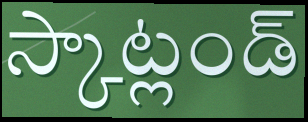
స్కాట్లండ్